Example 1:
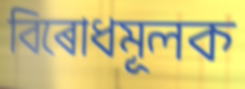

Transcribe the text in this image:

বিৰোধমূলক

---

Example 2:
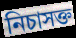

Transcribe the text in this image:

নিচাসক্ত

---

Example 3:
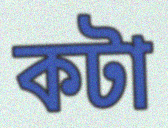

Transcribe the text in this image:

কটা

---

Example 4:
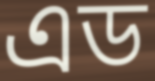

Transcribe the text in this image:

এড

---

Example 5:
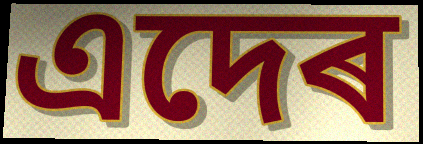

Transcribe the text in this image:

এদেৰ